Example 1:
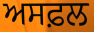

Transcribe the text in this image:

ਅਸਫ਼ਲ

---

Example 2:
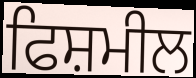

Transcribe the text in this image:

ਫਿਸ਼ਮੀਲ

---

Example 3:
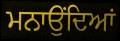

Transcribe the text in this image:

ਮਨਾਉਂਦਿਆਂ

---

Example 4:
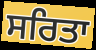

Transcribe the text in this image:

ਸਰਿਤਾ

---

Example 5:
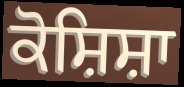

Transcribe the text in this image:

ਕੋਸ਼ਿਸ਼ਾ